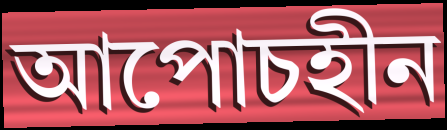
আপোচহীন